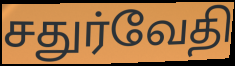
சதுர்வேதி